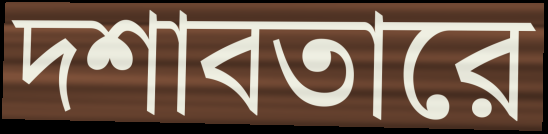
দশাবতারে